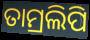
ତାମ୍ରଲିପି